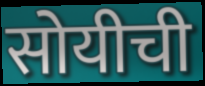
सोयीची